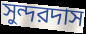
সুন্দরদাস